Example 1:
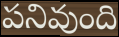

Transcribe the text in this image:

పనివుంది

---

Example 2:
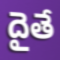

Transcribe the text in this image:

దైతే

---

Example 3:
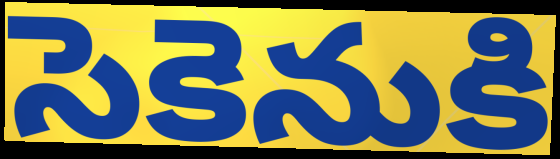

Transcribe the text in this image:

సెకెనుకి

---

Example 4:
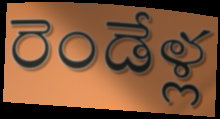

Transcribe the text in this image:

రెండేళ్ల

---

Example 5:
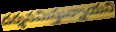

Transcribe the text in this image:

దర్శనమిస్తున్నాయని